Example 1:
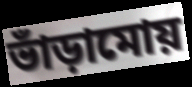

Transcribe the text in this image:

ভাঁড়ামোয়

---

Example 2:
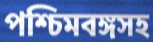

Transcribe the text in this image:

পশ্চিমবঙ্গসহ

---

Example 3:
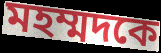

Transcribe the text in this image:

মহম্মদকে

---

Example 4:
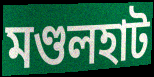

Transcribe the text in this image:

মণ্ডলহাট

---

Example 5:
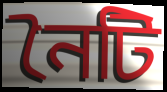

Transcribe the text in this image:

নৈটি